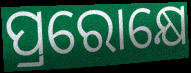
ପ୍ରରୋକ୍ଷେ